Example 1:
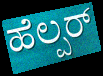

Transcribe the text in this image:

ಹೆಲ್ಪರ್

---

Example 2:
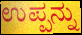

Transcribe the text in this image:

ಉಪ್ಪನ್ನು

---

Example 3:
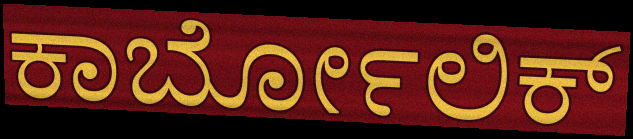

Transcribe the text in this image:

ಕಾರ್ಬೋಲಿಕ್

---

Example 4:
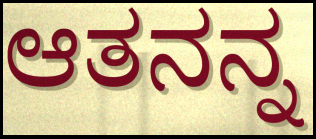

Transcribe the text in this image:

ಆತನನ್ನ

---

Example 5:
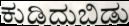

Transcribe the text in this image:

ಕುಡಿದುಬಿಡು